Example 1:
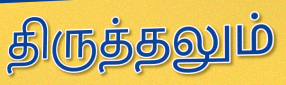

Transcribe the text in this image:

திருத்தலும்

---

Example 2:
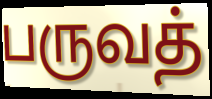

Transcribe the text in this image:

பருவத்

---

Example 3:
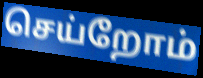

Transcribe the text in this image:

செய்றோம்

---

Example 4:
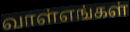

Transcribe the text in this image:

வாள்எங்கள்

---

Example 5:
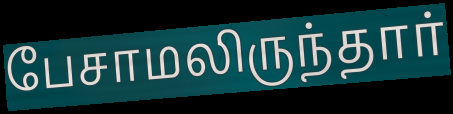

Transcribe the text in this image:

பேசாமலிருந்தார்